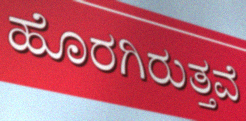
ಹೊರಗಿರುತ್ತವೆ